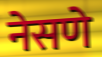
नेसणे